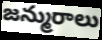
జన్మురాలు